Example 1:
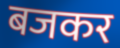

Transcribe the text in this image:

बजकर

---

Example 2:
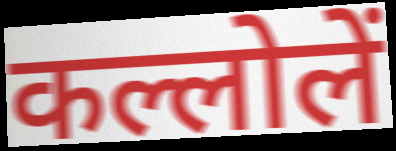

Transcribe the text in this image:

कल्लोलें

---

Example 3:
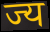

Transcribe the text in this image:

ज्य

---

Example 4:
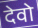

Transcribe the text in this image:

देवो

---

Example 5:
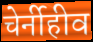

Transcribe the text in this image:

चेर्नीहीव